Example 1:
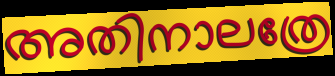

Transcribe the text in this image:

അതിനാലത്രേ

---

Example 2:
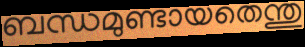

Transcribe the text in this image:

ബന്ധമുണ്ടായതെന്തു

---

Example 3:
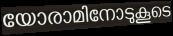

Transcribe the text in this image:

യോരാമിനോടുകൂടെ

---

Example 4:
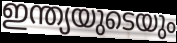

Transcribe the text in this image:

ഇന്ത്യയുടെയും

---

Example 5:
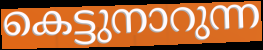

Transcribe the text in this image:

കെട്ടുനാറുന്ന